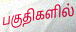
பகுதிகளில்